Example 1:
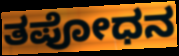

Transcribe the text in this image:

ತಪೋಧನ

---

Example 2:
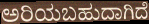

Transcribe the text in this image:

ಅರಿಯಬಹುದಾಗಿದೆ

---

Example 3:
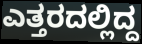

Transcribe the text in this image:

ಎತ್ತರದಲ್ಲಿದ್ದ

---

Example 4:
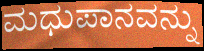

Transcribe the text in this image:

ಮಧುಪಾನವನ್ನು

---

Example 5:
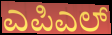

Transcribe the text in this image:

ಎಪಿಎಲ್